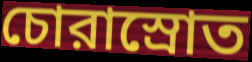
চোরাস্রোত